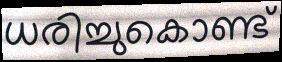
ധരിച്ചുകൊണ്ട്